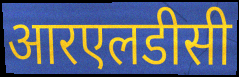
आरएलडीसी